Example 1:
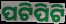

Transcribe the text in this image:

ପଟିପିଟି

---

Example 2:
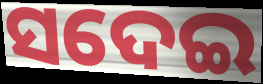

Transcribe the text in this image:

ସଦେଇ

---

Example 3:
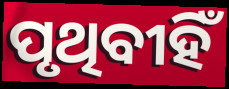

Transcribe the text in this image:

ପୃଥିବୀହିଁ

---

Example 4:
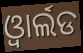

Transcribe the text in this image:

ଓ୍ବାର୍ଲଡ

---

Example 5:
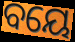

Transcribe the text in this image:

ବୟେ